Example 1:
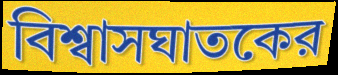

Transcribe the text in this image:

বিশ্বাসঘাতকের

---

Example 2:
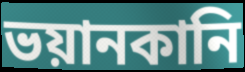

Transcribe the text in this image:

ভয়ানকানি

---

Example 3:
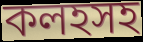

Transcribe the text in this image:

কলহসহ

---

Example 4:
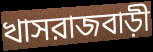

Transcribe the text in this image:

খাসরাজবাড়ী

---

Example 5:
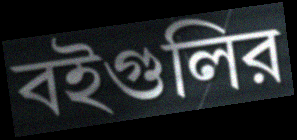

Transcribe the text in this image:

বইগুলির